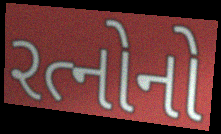
રત્નોનો